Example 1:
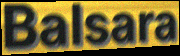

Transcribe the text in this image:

Balsara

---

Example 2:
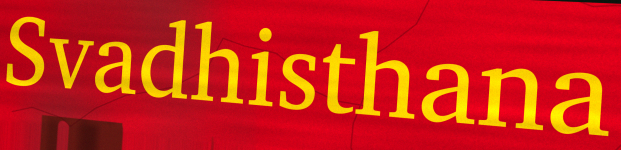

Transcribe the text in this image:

Svadhisthana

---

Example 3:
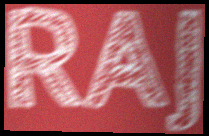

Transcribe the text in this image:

RAJ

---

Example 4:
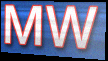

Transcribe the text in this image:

MW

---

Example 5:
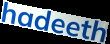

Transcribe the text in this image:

hadeeth